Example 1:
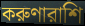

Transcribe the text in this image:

করুণারাশি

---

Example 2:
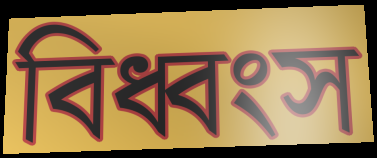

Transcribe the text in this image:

বিধ্বংস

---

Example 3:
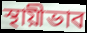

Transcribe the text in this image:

স্থায়ীভাব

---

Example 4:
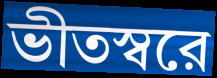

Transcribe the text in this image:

ভীতস্বরে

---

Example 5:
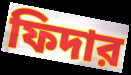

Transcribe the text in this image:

ফিদার